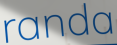
randa